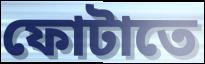
ফোটাতে